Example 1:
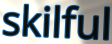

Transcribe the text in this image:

skilful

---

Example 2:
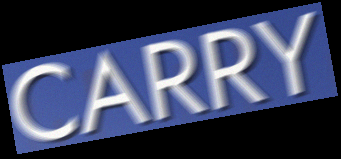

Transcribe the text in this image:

CARRY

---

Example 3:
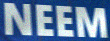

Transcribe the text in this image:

NEEM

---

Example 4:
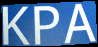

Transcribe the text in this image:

KPA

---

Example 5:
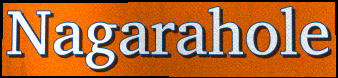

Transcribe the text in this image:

Nagarahole